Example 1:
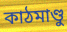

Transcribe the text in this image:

কাঠমাণ্ডু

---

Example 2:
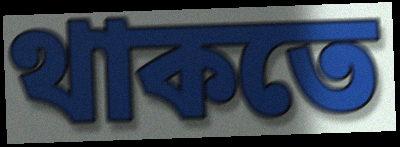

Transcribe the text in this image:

থাকতে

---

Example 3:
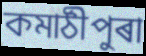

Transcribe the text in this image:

কমাঠীপুৰা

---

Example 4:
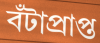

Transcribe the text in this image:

বঁটাপ্ৰাপ্ত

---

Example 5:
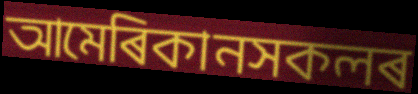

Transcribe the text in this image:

আমেৰিকানসকলৰ